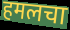
हमलचा